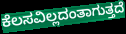
ಕೆಲಸವಿಲ್ಲದಂತಾಗುತ್ತದೆ